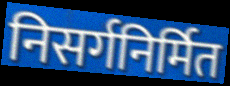
निसर्गनिर्मित